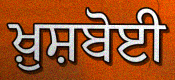
ਖ਼ੁਸ਼ਬੋਈ